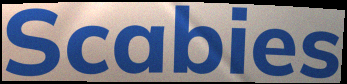
Scabies